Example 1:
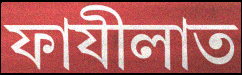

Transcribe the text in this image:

ফাযীলাত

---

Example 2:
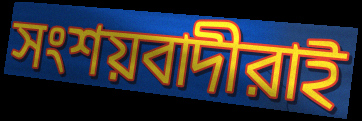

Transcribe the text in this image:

সংশয়বাদীরাই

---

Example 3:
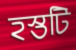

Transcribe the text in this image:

হস্তটি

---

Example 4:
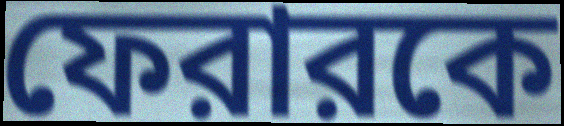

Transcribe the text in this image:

ফেরারকে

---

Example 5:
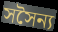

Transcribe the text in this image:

সসৈন্য